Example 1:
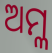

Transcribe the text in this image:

ଅମ୍ଳ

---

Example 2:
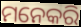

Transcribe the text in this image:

ମନେକରି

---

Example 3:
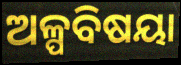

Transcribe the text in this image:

ଅଳ୍ପବିଷୟା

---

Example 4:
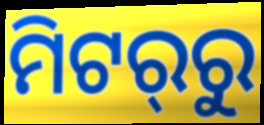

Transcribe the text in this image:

ମିଟର୍‍ରୁ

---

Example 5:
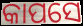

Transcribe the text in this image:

କାପସେ